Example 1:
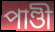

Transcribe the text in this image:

পাণ্ডী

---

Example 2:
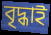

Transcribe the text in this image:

বৃদ্ধাই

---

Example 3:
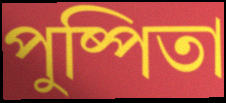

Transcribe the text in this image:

পুষ্পিতা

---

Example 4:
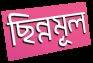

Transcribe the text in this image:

ছিন্নমূল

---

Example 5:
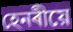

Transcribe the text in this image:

হেনৰীয়ে